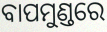
ବାପମୁଣ୍ଡରେ